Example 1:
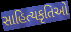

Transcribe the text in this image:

સાહિત્યકૃતિઓ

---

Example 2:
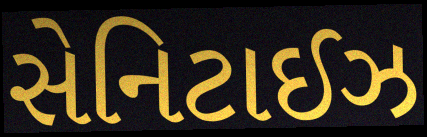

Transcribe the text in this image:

સેનિટાઈઝ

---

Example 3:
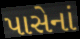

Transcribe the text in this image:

પાસેનાં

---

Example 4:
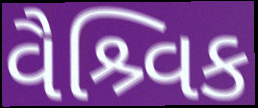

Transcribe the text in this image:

વૈશ્ર્વિક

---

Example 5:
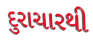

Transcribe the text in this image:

દુરાચારથી